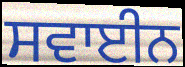
ਸਵਾਈਨ